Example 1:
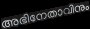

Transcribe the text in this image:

അഭിനേതാവിനും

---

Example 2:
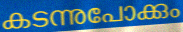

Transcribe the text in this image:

കടന്നുപോക്കും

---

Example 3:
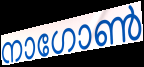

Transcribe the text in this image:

നാഗോൺ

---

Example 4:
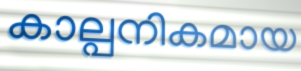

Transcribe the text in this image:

കാല്പനികമായ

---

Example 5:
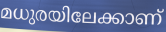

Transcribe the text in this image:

മധുരയിലേക്കാണ്